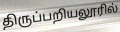
திருப்பறியலூரில்